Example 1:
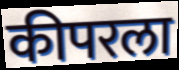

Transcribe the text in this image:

कीपरला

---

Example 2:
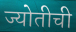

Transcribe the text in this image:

ज्योतीची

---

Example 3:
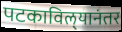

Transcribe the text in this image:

पटकाविल्यानंतर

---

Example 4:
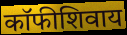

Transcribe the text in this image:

कॉफीशिवाय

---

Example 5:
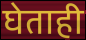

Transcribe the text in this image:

घेताही